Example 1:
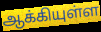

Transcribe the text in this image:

ஆக்கியுள்ள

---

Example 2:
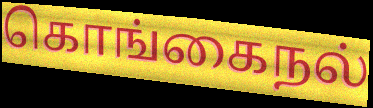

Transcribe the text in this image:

கொங்கைநல்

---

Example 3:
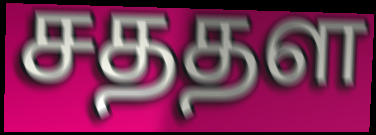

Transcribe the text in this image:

சததள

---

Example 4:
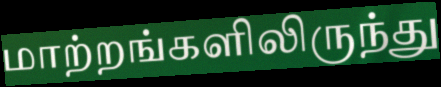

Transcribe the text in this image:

மாற்றங்களிலிருந்து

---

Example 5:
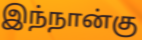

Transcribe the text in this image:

இந்நான்கு